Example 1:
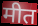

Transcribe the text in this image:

मीत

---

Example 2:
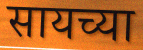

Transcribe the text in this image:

सायच्या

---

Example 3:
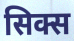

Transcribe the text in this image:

सिक्स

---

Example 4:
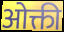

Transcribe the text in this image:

ओक्ती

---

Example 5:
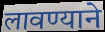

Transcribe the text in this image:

लावण्याने